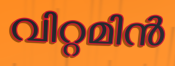
വിറ്റമിൻ